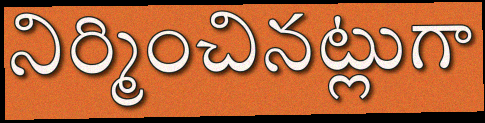
నిర్మించినట్లుగా